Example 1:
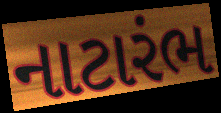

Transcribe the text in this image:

નાટારંભ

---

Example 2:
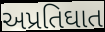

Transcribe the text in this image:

અપ્રતિઘાત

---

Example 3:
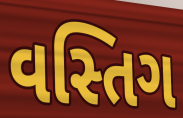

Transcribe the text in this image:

વસ્તિગ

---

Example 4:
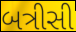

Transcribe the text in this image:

બત્રીસી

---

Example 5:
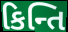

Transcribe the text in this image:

કિન્તિ